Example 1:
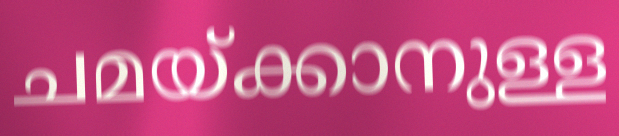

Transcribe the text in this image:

ചമയ്ക്കാനുള്ള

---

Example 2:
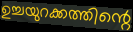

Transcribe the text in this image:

ഉച്ചയുറക്കത്തിന്റെ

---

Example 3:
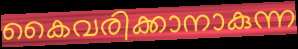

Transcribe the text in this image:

കൈവരിക്കാനാകുന്ന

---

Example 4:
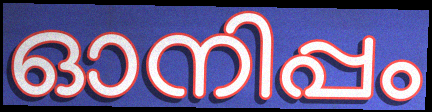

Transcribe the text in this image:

ഓനിപ്പം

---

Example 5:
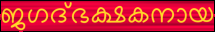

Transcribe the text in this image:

ജഗദ്ഭക്ഷകനായ